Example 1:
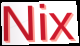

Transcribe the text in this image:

Nix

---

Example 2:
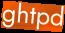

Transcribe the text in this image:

ghtpd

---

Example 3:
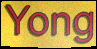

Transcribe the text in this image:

Yong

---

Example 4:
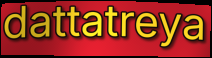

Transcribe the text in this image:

dattatreya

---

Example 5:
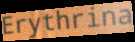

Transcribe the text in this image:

Erythrina